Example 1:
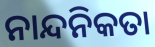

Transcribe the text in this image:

ନାନ୍ଦନିକତା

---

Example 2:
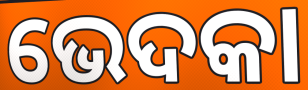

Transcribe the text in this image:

ଭେଦକା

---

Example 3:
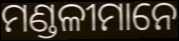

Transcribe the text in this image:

ମଣ୍ଡଳୀମାନେ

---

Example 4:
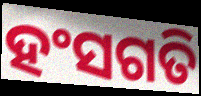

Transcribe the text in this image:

ହଂସଗତି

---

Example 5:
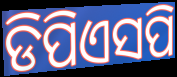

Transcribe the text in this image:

ଡିପିଏସପି